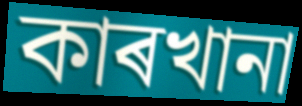
কাৰখানা